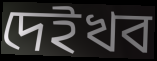
দেইখব